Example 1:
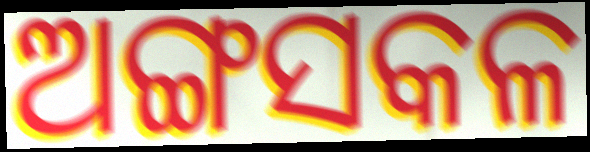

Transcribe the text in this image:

ଅଙ୍ଗସକଳ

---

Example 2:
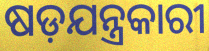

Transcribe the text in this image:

ଷଡ଼ଯନ୍ତ୍ରକାରୀ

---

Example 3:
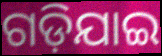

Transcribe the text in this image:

ଗଡ଼ିଯାଇ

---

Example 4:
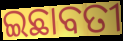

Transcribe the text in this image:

ଇଛାବତୀ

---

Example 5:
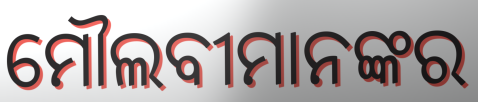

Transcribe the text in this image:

ମୌଲବୀମାନଙ୍କର